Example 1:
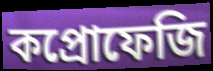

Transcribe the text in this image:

কপ্রোফেজি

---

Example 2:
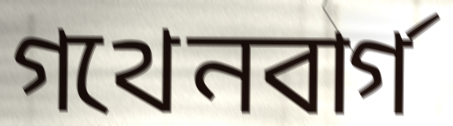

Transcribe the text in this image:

গথেনবার্গ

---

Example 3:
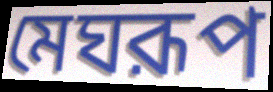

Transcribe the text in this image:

মেঘরূপ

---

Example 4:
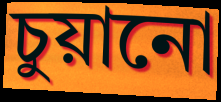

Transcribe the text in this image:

চুয়ানো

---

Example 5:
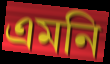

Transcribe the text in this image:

এমনি